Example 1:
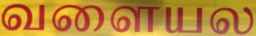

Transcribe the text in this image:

வளையல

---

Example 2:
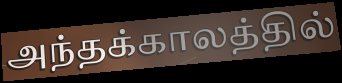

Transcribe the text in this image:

அந்தக்காலத்தில்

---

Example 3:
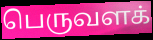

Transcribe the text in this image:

பெருவளக்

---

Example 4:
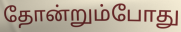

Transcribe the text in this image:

தோன்றும்போது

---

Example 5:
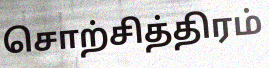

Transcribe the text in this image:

சொற்சித்திரம்